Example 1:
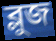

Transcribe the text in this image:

ব্লুজ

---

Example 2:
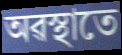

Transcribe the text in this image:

অৱস্থাতে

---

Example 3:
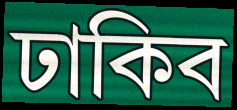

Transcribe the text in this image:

ঢাকিব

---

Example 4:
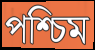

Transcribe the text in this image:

পশ্চিম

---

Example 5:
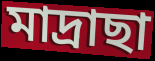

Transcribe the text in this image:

মাদ্ৰাছা